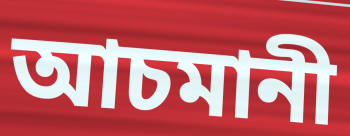
আচমানী